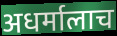
अधर्मालाच